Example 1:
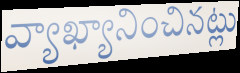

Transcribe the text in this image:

వ్యాఖ్యానించినట్లు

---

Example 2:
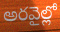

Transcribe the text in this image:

అరవైల్లో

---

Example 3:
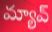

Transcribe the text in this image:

మ్యావ్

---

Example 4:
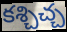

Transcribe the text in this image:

కశ్చిచ్చ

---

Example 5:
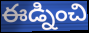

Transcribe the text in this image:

ఈడ్నించి